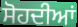
ਸੋਹਦੀਆਂ